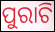
ପୁରାଚି